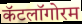
कॅटलॉगोरम